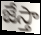
జేస్తా